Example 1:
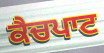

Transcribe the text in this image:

ਕੈਚਪਾਟ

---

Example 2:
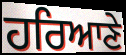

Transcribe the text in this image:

ਹਰਿਆਣੇ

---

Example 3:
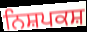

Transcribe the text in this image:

ਨਿਸ਼ਪਕਸ਼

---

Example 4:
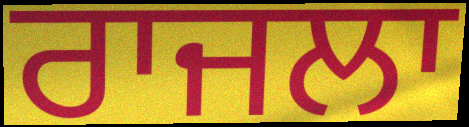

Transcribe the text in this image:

ਰਾਜਲਾ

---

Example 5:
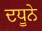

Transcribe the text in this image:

ਦਧੂਨੇ